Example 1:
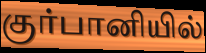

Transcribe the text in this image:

குர்பானியில்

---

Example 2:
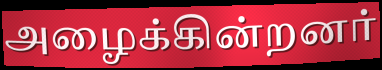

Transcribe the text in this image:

அழைக்கின்றனர்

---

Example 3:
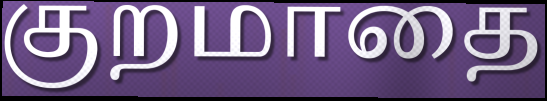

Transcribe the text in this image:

குறமாதை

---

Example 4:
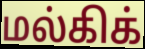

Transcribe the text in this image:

மல்கிக்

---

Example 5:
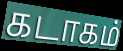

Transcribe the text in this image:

கடாகம்